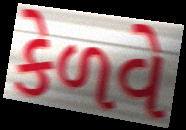
કેળવે